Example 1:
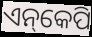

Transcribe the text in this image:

ଏନ୍‌କେପି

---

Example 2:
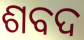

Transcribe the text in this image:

ଶବଦ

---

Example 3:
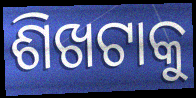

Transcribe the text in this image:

ଶିଖଟାକୁ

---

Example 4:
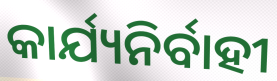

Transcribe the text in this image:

କାର୍ଯ୍ୟନିର୍ବାହୀ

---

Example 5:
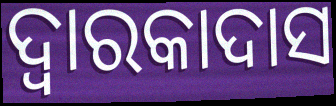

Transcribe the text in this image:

ଦ୍ୱାରକାଦାସ